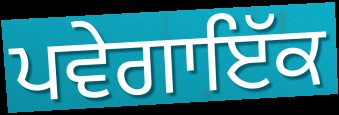
ਪਵੇਗਾਇੱਕ